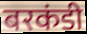
बरकंडी